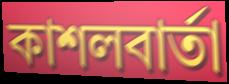
কাশলবার্তা